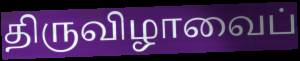
திருவிழாவைப்